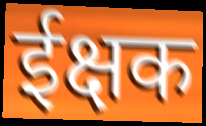
ईक्षक